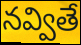
నవ్వితే